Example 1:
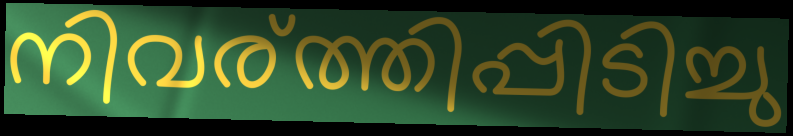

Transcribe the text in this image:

നിവര്ത്തിപ്പിടിച്ചു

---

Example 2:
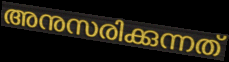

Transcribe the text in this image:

അനുസരിക്കുന്നത്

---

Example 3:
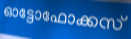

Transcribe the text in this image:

ഓട്ടോഫോക്കസ്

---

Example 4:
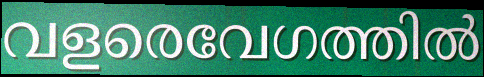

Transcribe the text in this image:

വളരെവേഗത്തിൽ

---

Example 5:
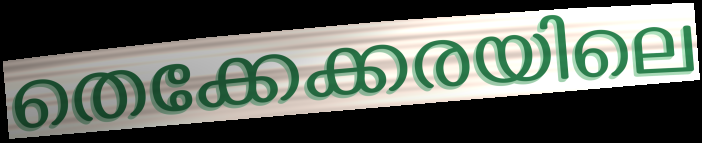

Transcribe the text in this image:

തെക്കേക്കരയിലെ